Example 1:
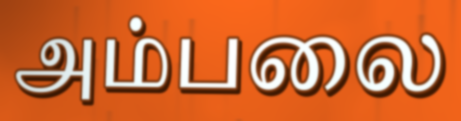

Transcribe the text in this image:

அம்பலை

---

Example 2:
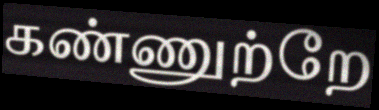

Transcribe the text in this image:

கண்ணுற்றே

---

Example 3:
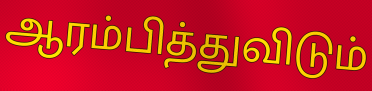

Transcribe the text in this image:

ஆரம்பித்துவிடும்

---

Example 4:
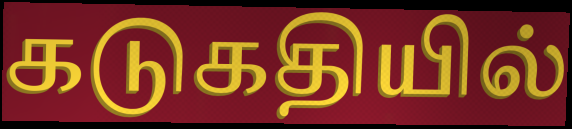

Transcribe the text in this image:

கடுகதியில்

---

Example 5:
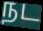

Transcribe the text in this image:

நட